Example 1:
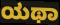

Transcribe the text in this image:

ಯಥಾ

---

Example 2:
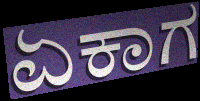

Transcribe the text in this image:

ಏಕಾಗ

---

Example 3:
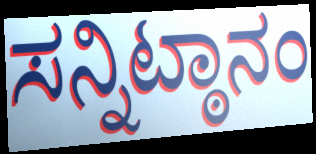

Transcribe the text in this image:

ಸನ್ನಿಟ್ಠಾನಂ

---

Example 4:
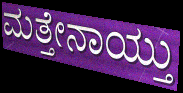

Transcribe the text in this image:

ಮತ್ತೇನಾಯ್ತು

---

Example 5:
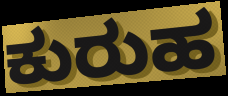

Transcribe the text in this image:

ಕುರುಹ